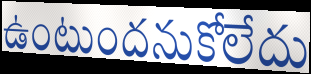
ఉంటుందనుకోలేదు